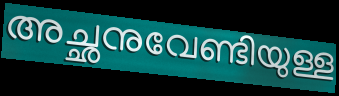
അച്ഛനുവേണ്ടിയുള്ള